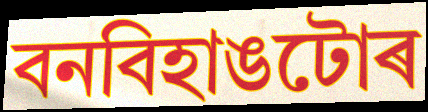
বনবিহাঙটোৰ